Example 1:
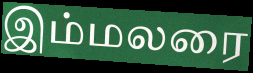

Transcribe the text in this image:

இம்மலரை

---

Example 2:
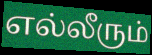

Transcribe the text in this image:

எல்லீரும்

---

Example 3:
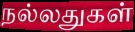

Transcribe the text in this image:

நல்லதுகள்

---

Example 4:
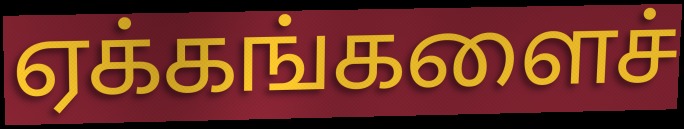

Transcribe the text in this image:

ஏக்கங்களைச்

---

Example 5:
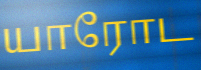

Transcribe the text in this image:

யாரோட